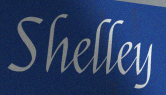
Shelley